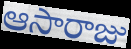
ఆసారాజు